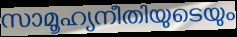
സാമൂഹ്യനീതിയുടെയും